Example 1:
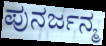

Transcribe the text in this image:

ಪುನರ್ಜನ್ಮ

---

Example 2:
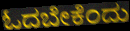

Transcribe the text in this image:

ಓದಬೇಕೆಂದು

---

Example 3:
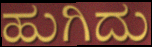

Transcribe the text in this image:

ಹುಗಿದು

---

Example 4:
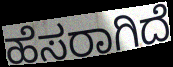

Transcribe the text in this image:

ಹೆಸರಾಗಿದೆ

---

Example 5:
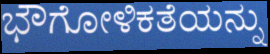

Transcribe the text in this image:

ಭೌಗೋಳಿಕತೆಯನ್ನು